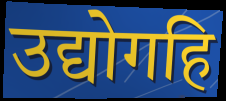
उद्योगहि